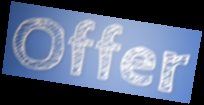
Offer